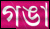
গঙা